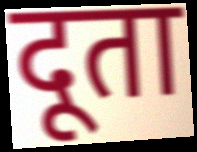
दूता